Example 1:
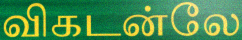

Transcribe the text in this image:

விகடன்லே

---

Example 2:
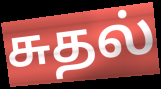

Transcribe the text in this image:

சுதல்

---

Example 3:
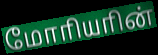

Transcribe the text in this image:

மோரியரின்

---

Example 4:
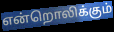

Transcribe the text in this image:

என்றொலிக்கும்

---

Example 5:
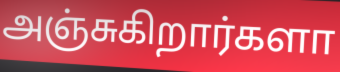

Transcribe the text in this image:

அஞ்சுகிறார்களா